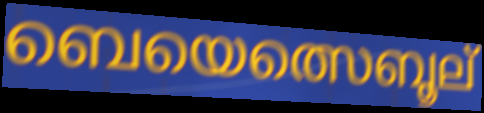
ബെയെത്സെബൂല്